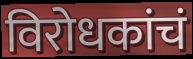
विरोधकांचं